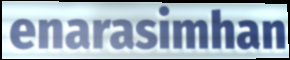
enarasimhan